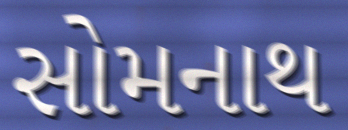
સોમનાથ